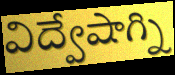
విద్వేషాగ్ని